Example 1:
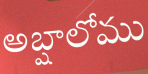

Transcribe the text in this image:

అబ్షాలోము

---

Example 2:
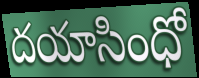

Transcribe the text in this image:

దయాసింధో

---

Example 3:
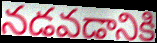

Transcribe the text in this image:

నడవడానికి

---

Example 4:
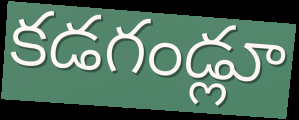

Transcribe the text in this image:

కడగండ్లూ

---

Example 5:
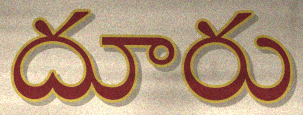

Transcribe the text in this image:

దూరు